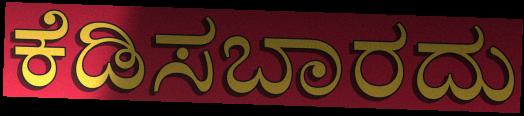
ಕೆಡಿಸಬಾರದು